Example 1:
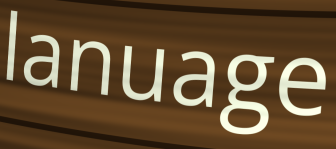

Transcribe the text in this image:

lanuage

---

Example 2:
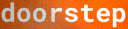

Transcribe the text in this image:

doorstep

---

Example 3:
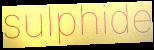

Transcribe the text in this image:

sulphide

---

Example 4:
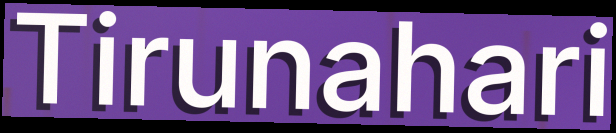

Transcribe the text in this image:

Tirunahari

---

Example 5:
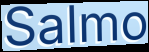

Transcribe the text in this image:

Salmo